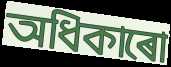
অধিকাৰো